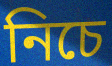
নিচে